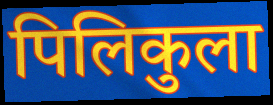
पिलिकुला